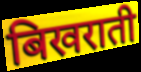
बिखराती